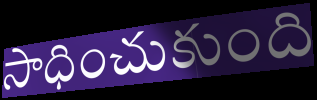
సాధించుకుంది